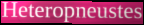
Heteropneustes